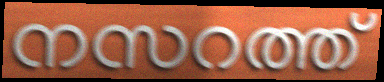
നസറത്ത്